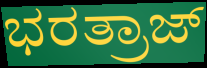
ಭರತ್ರಾಜ್